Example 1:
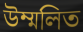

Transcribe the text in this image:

উম্মলিত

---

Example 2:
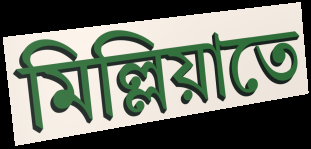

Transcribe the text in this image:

মিল্লিয়াতে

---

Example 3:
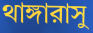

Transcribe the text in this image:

থাঙ্গারাসু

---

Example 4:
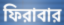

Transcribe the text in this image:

ফিরাবার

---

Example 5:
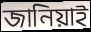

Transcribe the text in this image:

জানিয়াই